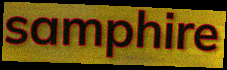
samphire